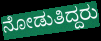
ನೋಡುತಿದ್ದರು